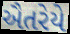
ઐતરેયે